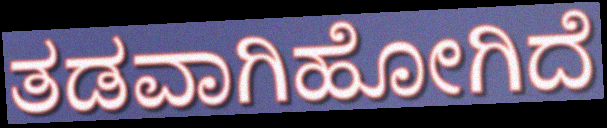
ತಡವಾಗಿಹೋಗಿದೆ